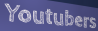
Youtubers